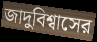
জাদুবিশ্বাসের